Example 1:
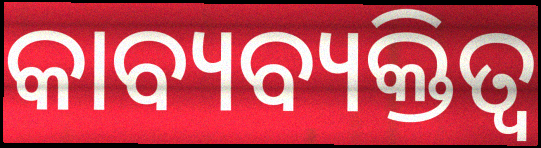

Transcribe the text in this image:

କାବ୍ୟବ୍ୟକ୍ତିତ୍ୱ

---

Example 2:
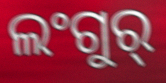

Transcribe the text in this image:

ଲଂଗୁର୍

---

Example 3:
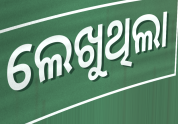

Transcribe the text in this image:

ଲେଖୁଥିଲା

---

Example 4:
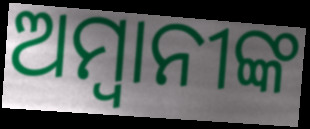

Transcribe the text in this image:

ଅମ୍ବାନୀଙ୍କ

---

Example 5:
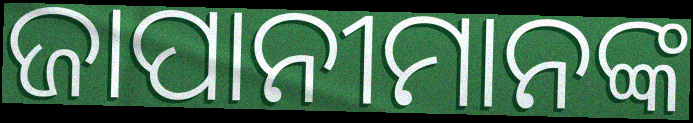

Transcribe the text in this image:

ଜାପାନୀମାନଙ୍କ